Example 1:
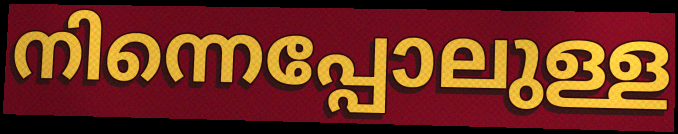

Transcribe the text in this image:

നിന്നെപ്പോലുള്ള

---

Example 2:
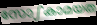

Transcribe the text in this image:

സോഽകാമയത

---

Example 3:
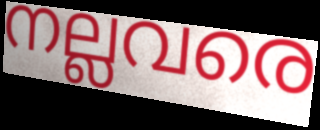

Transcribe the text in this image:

നല്ലവരെ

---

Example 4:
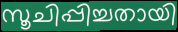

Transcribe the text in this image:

സൂചിപ്പിച്ചതായി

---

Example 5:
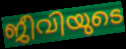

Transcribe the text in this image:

ജീവിയുടെ